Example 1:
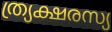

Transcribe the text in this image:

ത്ര്യക്ഷരസ്യ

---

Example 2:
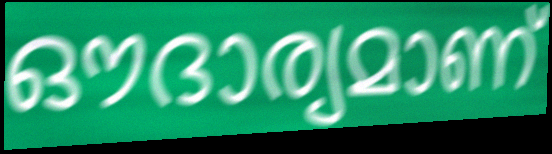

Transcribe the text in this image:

ഔദാര്യമാണ്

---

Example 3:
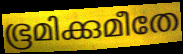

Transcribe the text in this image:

ഭൂമിക്കുമീതേ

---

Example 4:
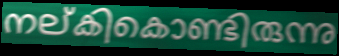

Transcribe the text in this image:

നല്കികൊണ്ടിരുന്നു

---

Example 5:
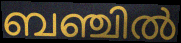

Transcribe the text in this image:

ബഞ്ചിൽ